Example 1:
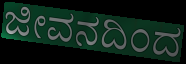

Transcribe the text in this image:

ಜೀವನದಿಂದ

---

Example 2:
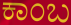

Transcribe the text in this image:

ಕಾಂಬ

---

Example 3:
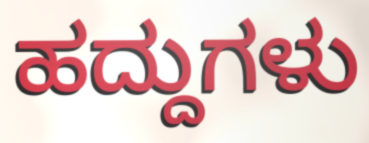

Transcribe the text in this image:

ಹದ್ದುಗಳು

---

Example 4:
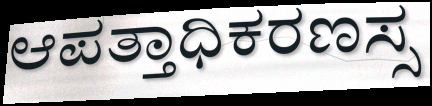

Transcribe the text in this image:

ಆಪತ್ತಾಧಿಕರಣಸ್ಸ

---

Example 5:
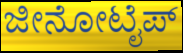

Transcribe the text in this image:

ಜೀನೋಟೈಪ್